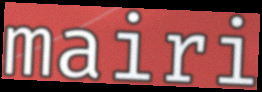
mairi